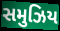
સમુઝિય